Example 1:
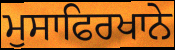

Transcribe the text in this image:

ਮੁਸਾਫਿਰਖਾਨੇ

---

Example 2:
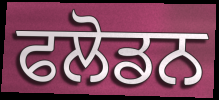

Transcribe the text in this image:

ਫਲੋਡਨ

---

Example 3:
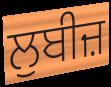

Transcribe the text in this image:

ਲੁਬੀਜ਼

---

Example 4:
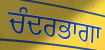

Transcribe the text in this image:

ਚੰਦਰਭਾਗਾ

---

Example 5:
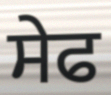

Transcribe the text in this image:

ਸੇਫ